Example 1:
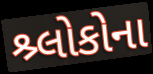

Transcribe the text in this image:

શ્ર્લોકોના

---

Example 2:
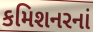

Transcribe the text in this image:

કમિશનરનાં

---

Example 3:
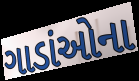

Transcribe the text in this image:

ગાડાંઓના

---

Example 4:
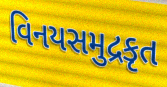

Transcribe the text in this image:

વિનયસમુદ્રકૃત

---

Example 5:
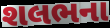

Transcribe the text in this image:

શલભના